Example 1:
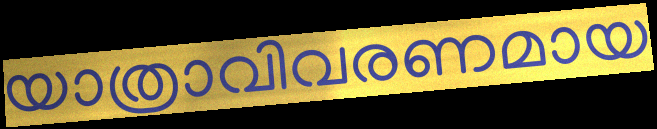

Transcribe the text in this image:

യാത്രാവിവരണമായ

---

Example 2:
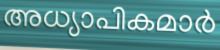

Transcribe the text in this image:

അധ്യാപികമാർ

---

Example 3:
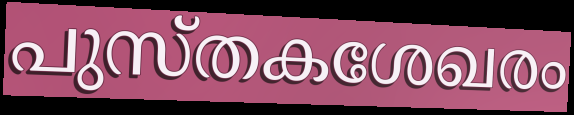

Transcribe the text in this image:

പുസ്തകശേഖരം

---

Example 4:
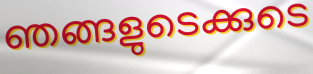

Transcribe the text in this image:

ഞങ്ങളുടെക്കുടെ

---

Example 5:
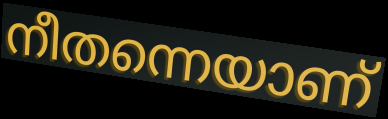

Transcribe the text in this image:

നീതന്നെയാണ്